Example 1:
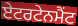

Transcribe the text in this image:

ਏਟਰਟੇਨਮੈਂਟ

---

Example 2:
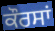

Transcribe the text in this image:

ਕੌਰਸਾਂ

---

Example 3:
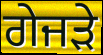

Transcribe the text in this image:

ਗੇਜੜੇ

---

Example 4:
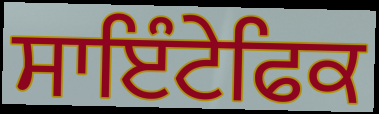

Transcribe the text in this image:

ਸਾਇੰਟੇਫਿਕ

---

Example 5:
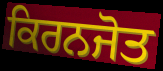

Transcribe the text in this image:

ਕਿਰਨਜੋਤ